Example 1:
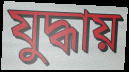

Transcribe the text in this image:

যুদ্ধায়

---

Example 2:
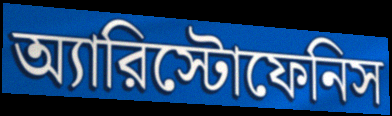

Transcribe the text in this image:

অ্যারিস্টোফেনিস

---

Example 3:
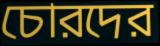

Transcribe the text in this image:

চোরদের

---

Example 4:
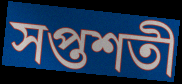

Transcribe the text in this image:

সপ্তশতী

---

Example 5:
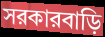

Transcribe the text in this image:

সরকারবাড়ি